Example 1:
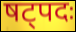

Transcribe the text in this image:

षट्पदः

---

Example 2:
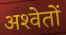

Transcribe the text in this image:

अश्‍वेतों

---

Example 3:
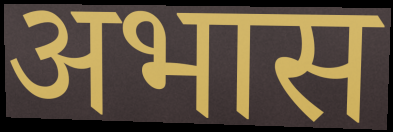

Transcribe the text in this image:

अभास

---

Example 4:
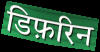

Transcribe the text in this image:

डिफ़रिन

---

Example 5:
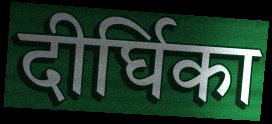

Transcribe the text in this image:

दीर्घिका